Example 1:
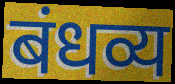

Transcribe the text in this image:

बंधव्य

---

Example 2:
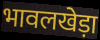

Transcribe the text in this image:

भावलखेड़ा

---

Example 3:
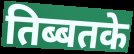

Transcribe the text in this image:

तिब्बतके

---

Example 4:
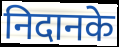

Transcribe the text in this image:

निदानके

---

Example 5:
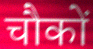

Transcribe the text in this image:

चौकों